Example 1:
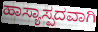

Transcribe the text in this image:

ಹಾಸ್ಯಾಸ್ಪದವಾಗಿ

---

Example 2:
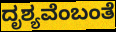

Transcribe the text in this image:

ದೃಶ್ಯವೆಂಬಂತೆ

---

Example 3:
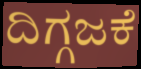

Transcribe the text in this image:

ದಿಗ್ಗಜಕೆ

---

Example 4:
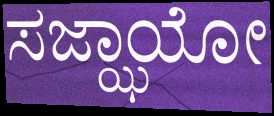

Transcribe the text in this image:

ಸಜ್ಝಾಯೋ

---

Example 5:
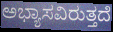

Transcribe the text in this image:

ಅಭ್ಯಾಸವಿರುತ್ತದೆ